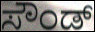
ಸೌಂಡ್